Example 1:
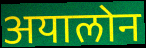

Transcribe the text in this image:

अयालोन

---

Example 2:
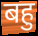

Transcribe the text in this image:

बहु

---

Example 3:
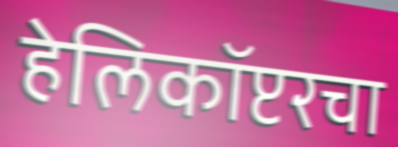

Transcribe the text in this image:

हेलिकॉप्टरचा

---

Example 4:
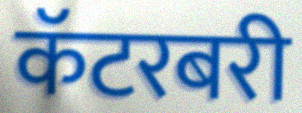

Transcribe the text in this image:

कॅटरबरी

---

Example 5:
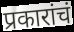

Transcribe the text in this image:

प्रकारांचं